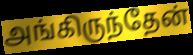
அங்கிருந்தேன்